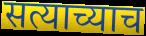
सत्याच्याच